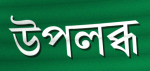
উপলব্ধ